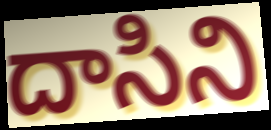
దాసిని